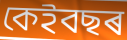
কেইবছৰ